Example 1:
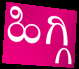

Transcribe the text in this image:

ಹಿಗ್ಗಿ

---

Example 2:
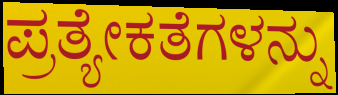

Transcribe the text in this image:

ಪ್ರತ್ಯೇಕತೆಗಳನ್ನು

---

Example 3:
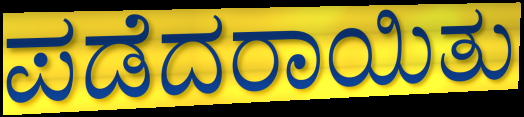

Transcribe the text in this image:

ಪಡೆದರಾಯಿತು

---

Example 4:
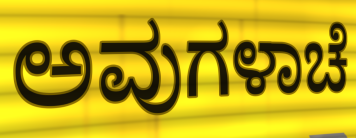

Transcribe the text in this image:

ಅವುಗಳಾಚೆ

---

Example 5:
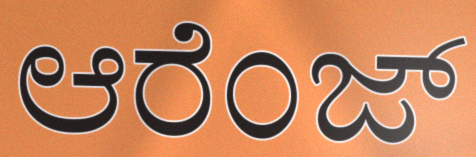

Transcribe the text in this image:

ಆರೆಂಜ್